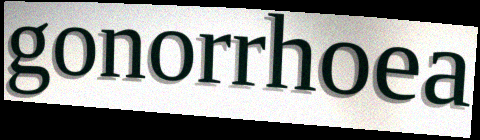
gonorrhoea